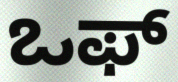
ಒಫ್